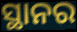
ସ୍ଥାନର